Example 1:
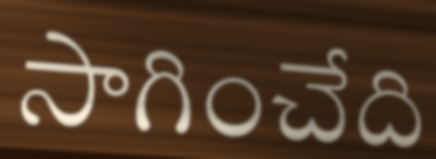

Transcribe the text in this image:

సాగించేది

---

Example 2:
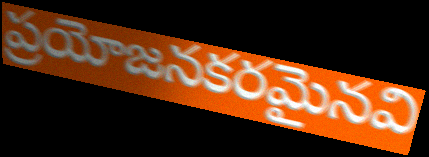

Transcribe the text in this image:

ప్రయోజనకరమైనవి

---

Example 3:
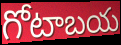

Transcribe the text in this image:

గోటాబయ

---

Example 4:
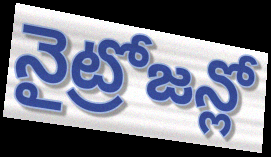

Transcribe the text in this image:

నైట్రోజన్లో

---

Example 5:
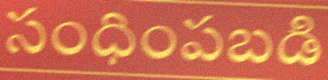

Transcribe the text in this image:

సంధింపబడి